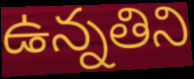
ఉన్నతిని